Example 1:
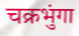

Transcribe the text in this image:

चक्रभुंगा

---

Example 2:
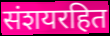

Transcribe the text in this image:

संशयरहित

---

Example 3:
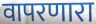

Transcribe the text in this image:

वापरणारा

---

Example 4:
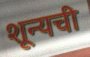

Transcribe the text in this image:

शून्यची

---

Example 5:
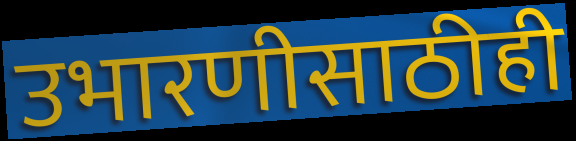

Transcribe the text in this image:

उभारणीसाठीही